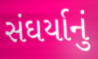
સંઘર્યાનું